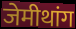
जेमीथांग